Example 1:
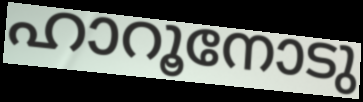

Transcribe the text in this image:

ഹാറൂനോടു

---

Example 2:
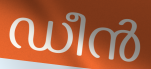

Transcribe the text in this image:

ഡീൻ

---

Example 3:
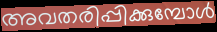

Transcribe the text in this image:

അവതരിപ്പിക്കുമ്പോൾ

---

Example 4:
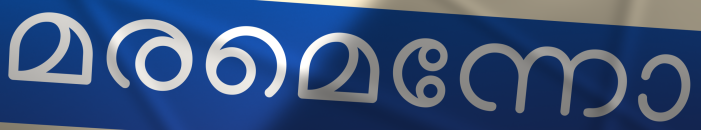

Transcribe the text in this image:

മരമെന്നോ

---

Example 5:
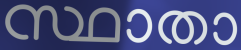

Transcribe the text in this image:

സ്ഥാതാ